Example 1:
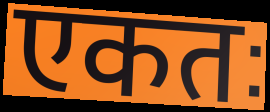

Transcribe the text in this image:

एकतः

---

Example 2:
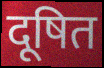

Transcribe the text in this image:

दूषित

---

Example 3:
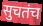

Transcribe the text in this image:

सुचतंच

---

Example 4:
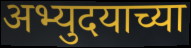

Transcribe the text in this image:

अभ्युदयाच्या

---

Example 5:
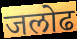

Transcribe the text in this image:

जलोढ